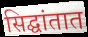
सिद्घांतात